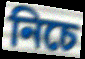
নিচে